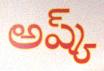
అష్క్